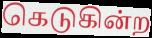
கெடுகின்ற